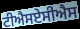
ਟੀਐਸਏਸੀਐਸ